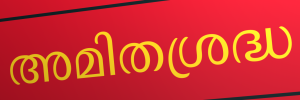
അമിതശ്രദ്ധ